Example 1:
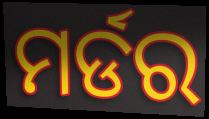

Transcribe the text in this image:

ମର୍ଡର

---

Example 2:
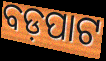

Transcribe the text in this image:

ବଡ଼ପାଟ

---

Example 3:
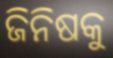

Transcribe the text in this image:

ଜିନିଷକୁ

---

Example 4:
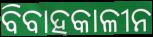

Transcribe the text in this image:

ବିବାହକାଳୀନ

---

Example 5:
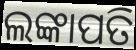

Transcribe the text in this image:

ଲଙ୍କାପତି